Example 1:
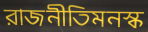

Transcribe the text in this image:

রাজনীতিমনস্ক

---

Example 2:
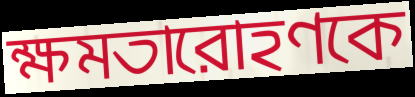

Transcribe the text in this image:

ক্ষমতারোহণকে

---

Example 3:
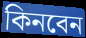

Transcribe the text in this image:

কিনবেন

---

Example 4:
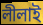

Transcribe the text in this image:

লীলাই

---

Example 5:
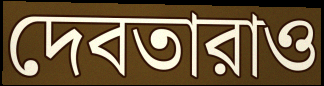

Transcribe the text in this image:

দেবতারাও